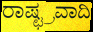
ರಾಷ್ಟ್ರವಾದಿ